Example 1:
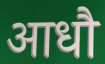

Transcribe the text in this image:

आधौ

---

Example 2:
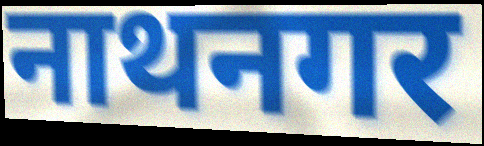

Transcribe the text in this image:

नाथनगर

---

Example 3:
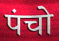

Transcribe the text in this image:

पंचो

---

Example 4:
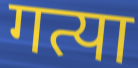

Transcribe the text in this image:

गत्या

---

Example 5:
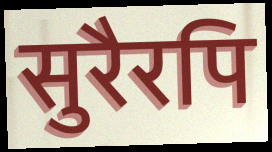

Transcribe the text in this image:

सुरैरपि